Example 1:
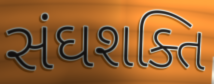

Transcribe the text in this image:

સંઘશક્તિ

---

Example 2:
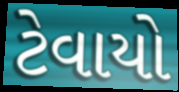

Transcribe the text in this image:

ટેવાયો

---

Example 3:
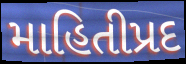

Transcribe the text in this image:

માહિતીપ્રદ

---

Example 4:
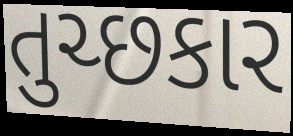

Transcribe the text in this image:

તુચ્છકાર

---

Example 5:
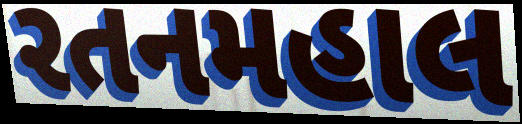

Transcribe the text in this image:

રતનમહાલ